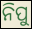
ନିପୁ